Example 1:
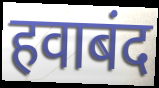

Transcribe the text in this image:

हवाबंद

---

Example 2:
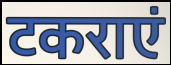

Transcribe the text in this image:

टकराएं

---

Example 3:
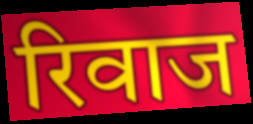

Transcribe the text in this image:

रिवाज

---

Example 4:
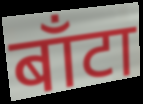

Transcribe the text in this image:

बाँटा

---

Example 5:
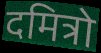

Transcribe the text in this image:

दमित्रो